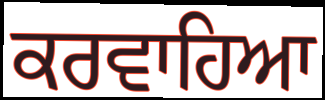
ਕਰਵਾਹਿਆ